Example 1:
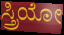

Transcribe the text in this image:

ಸ್ತ್ರಿಯೋ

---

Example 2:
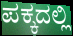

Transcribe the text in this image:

ಪಕ್ಕದಲ್ಲಿ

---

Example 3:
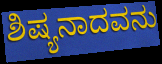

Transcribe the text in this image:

ಶಿಷ್ಯನಾದವನು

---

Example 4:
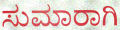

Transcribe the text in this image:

ಸುಮಾರಾಗಿ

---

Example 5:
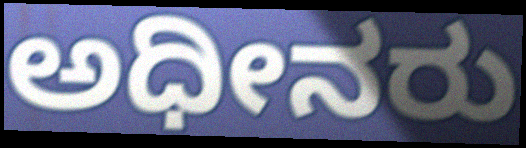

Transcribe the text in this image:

ಅಧೀನರು